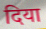
दिया